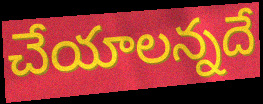
చేయాలన్నదే